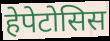
हेपेटोसिस